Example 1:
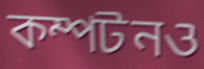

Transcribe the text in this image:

কম্পটনও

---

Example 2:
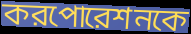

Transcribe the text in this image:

করপোরেশনকে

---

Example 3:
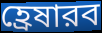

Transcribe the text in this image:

হ্রেষারব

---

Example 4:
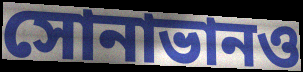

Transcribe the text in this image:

সোনাভানও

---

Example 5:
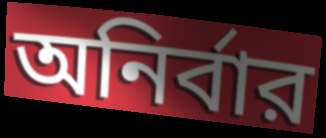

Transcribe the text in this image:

অনির্বার